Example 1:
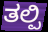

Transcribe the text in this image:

ತಲ್ಪಿ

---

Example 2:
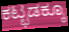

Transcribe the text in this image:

ಕಟ್ಟಡಕ್ಕೂ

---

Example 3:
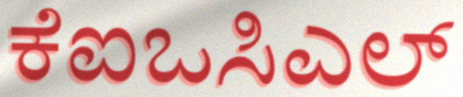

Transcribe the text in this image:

ಕೆಐಒಸಿಎಲ್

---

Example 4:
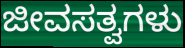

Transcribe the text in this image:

ಜೀವಸತ್ವಗಳು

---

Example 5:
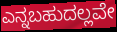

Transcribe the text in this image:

ಎನ್ನಬಹುದಲ್ಲವೇ